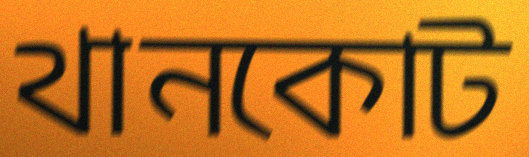
থানকোট